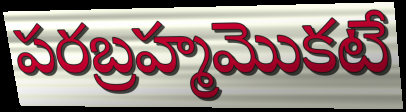
పరబ్రహ్మమొకటే